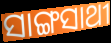
ସାଙ୍ଗସାଥୀ